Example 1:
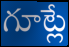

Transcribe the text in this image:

గూట్లే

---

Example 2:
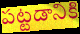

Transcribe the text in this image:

పట్టడానికి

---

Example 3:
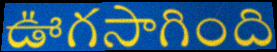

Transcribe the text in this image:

ఊగసాగింది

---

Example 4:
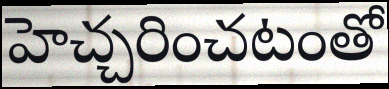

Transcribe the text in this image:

హెచ్చరించటంతో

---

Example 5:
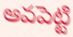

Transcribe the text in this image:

ఆవపెట్టి